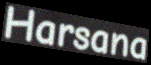
Harsana